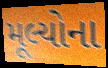
મૂલ્‍યોના